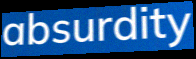
absurdity